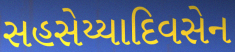
સહસેય્યાદિવસેન